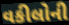
વકીલોની